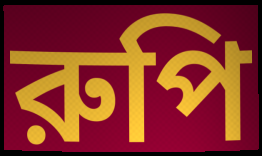
রুপি